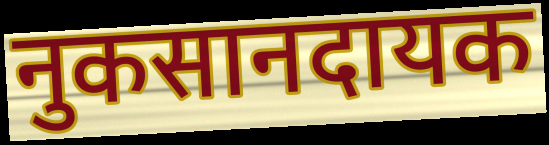
नुकसानदायक